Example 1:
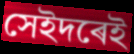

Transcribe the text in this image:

সেইদৰেই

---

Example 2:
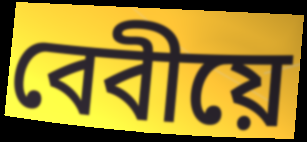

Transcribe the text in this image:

বেবীয়ে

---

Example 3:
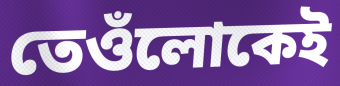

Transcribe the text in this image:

তেওঁলোকেই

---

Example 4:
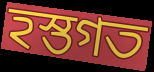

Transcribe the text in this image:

হস্তগত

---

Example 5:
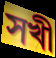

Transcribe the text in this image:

সখী